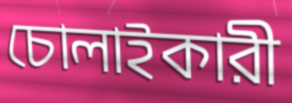
চোলাইকারী